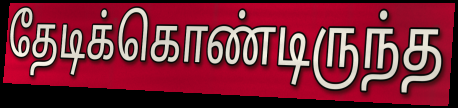
தேடிக்கொண்டிருந்த